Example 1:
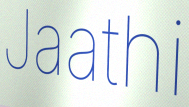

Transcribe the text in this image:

Jaathi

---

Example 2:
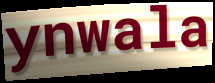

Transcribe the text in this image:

ynwala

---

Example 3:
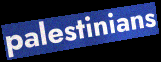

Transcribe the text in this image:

palestinians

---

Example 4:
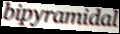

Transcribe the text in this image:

bipyramidal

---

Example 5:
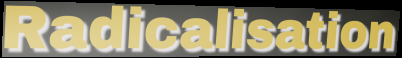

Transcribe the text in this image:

Radicalisation